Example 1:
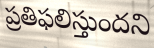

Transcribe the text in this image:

ప్రతిఫలిస్తుందని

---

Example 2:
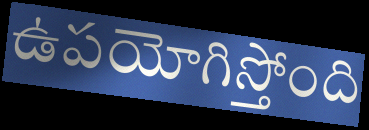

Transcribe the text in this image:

ఉపయోగిస్తోంది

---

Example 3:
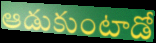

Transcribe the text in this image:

ఆడుకుంటాడో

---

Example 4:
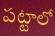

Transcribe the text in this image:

పట్టాలో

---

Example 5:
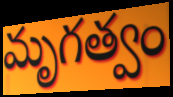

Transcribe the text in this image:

మృగత్వం